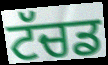
ਟੱਚਡ